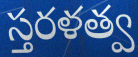
స్తరళత్వ